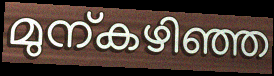
മുന്കഴിഞ്ഞ